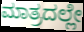
ಮಾತ್ರದಲ್ಲೇ